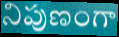
నిపుణంగా